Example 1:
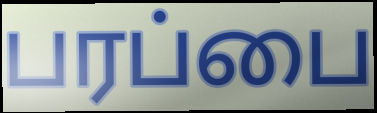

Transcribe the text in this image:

பரப்பை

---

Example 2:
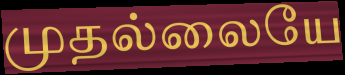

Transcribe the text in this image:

முதல்லையே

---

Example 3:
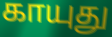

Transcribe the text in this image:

காயுது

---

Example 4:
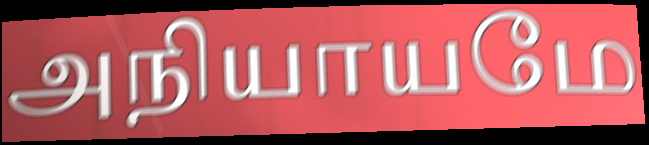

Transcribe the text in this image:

அநியாயமே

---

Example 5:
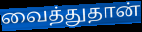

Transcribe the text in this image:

வைத்துதான்